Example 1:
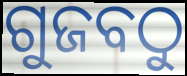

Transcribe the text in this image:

ଗୁଜବଠୁ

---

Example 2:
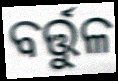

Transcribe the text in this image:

ବର୍ତ୍ତୁଳ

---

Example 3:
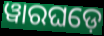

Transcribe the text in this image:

ୱାରଘଡ଼େ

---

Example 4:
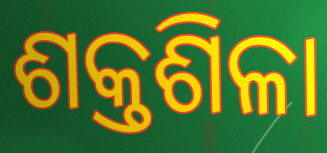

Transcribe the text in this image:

ଶକ୍ତଶିଳା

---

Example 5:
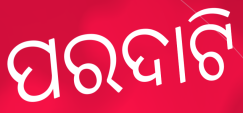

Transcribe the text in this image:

ପରଦାଟି